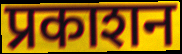
प्रकाशन